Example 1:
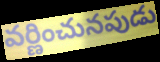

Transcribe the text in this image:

వర్ణించునపుడు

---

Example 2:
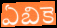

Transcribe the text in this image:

ఏబికె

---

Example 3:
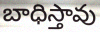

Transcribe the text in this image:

బాధిస్తావు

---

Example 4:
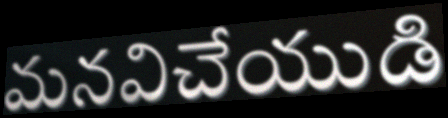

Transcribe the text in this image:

మనవిచేయుడి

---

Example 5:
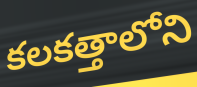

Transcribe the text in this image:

కలకత్తాలోని